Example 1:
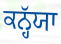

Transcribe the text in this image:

ਕਨ੍ਹੱਯਾ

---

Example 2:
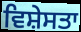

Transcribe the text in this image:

ਵਿਸ਼ੇਸਤਾ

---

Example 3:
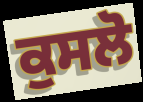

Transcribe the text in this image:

ਕੁਸਲੋ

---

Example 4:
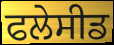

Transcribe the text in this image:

ਫਲੇਸੀਡ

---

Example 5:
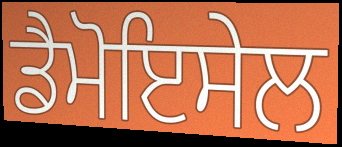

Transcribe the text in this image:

ਡੈਮੋਇਸੇਲ